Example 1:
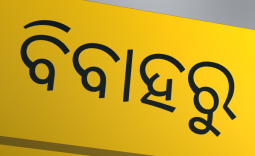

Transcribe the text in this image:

ବିବାହରୁ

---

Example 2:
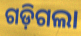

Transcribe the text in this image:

ଗଡ଼ିଗଲା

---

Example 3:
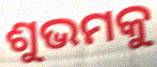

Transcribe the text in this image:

ଶୁଭମକୁ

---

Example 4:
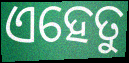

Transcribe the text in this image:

ଏହେତୁ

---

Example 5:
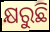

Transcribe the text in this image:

କ୍ଷରୁଛି